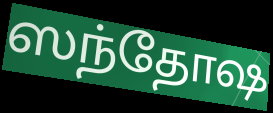
ஸந்தோஷ